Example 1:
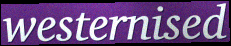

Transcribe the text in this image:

westernised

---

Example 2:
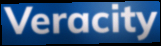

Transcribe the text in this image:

Veracity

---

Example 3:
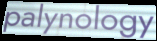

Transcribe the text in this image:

palynology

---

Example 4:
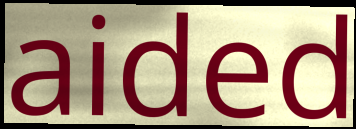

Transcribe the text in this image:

aided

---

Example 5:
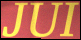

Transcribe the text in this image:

JUI